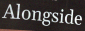
Alongside